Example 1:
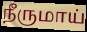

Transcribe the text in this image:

நீருமாய்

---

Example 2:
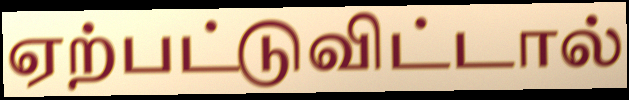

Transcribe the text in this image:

ஏற்பட்டுவிட்டால்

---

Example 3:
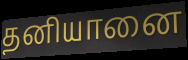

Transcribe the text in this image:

தனியானை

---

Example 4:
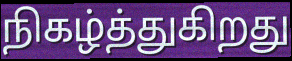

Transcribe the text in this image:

நிகழ்த்துகிறது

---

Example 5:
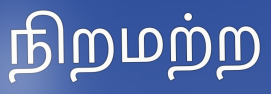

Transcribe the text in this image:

நிறமற்ற